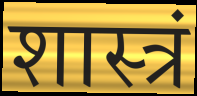
शास्त्रं